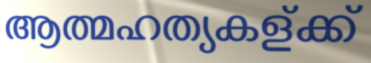
ആത്മഹത്യകള്ക്ക്